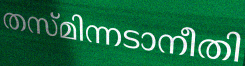
തസ്മിന്നടാനീതി